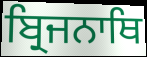
ਬ੍ਰਿਜਨਾਥਿ